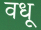
वधू